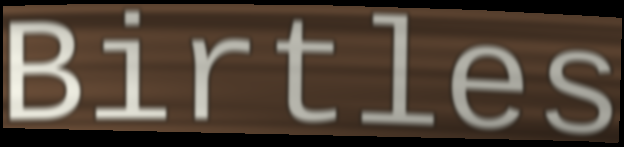
Birtles